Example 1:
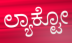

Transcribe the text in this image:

ಲ್ಯಾಕ್ಟೋ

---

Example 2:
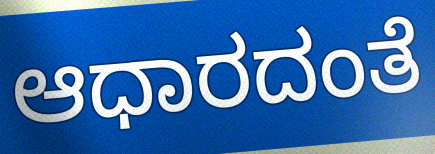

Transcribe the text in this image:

ಆಧಾರದಂತೆ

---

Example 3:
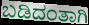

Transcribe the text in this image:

ಬಡಿದಂತಾಗಿ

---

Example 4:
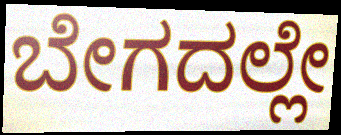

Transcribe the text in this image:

ಬೇಗದಲ್ಲೇ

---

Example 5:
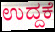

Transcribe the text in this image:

ಉದ್ದಕೆ